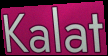
Kalat